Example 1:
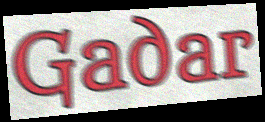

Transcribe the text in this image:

Gadar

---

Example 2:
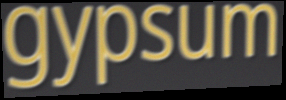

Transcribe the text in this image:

gypsum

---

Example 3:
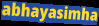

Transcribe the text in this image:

abhayasimha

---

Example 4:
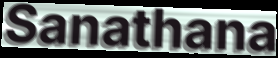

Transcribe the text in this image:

Sanathana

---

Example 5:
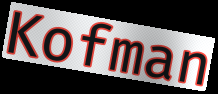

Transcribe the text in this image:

Kofman